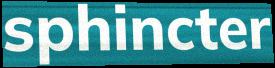
sphincter